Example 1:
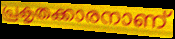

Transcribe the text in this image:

പ്രകൃതക്കാരനാണ്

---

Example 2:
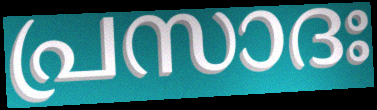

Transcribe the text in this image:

പ്രസാദഃ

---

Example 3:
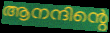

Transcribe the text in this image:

ആനന്ദിന്റെ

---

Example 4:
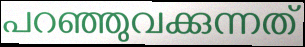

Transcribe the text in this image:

പറഞ്ഞുവക്കുന്നത്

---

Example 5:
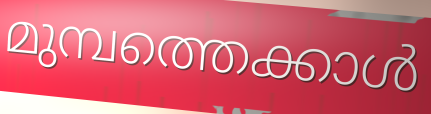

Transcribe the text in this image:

മുമ്പത്തെക്കാൾ